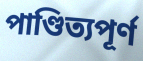
পাণ্ডিত্যপূর্ণ